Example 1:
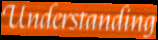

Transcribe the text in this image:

Understanding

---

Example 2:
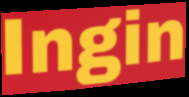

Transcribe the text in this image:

Ingin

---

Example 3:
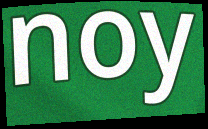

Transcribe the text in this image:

noy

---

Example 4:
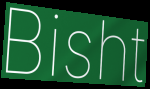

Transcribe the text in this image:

Bisht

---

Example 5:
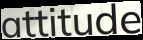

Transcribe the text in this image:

attitude